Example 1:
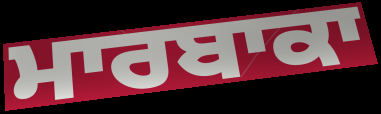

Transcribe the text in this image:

ਮਾਰਬਾਕਾ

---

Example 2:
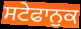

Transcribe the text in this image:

ਸਟੇਫਾਨੁਕ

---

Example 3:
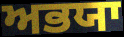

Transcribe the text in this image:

ਅਭਯਾ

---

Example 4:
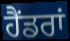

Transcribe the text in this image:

ਹੈਂਡਰਾਂ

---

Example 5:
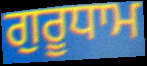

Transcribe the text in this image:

ਗੁਰੂਧਾਮ